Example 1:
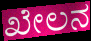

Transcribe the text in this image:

ಖೇಲನ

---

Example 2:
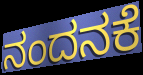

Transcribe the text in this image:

ನಂದನಕೆ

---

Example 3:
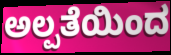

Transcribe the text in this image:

ಅಲ್ಪತೆಯಿಂದ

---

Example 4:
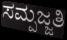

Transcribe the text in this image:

ಸಮ್ಪಜ್ಜತಿ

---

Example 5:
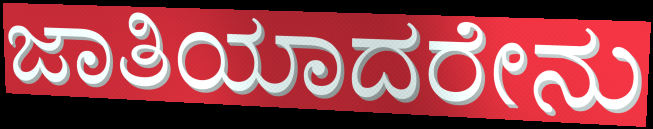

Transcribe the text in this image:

ಜಾತಿಯಾದರೇನು